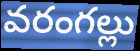
వరంగల్లు